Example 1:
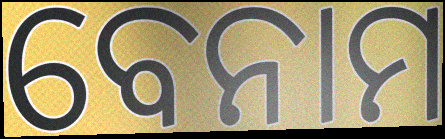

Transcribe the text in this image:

ବେନାମ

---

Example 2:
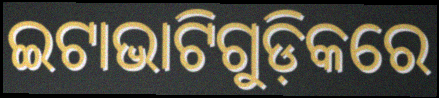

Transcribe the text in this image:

ଇଟାଭାଟିଗୁଡ଼ିକରେ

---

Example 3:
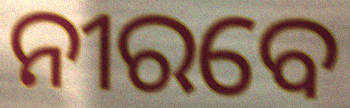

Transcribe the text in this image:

ନୀରବେ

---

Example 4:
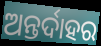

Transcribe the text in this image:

ଅନ୍ତର୍ଦାହର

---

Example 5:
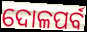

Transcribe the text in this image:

ଦୋଳପର୍ବ